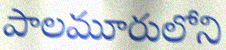
పాలమూరులోని